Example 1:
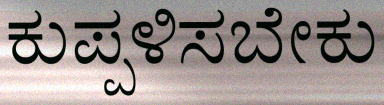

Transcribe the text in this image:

ಕುಪ್ಪಳಿಸಬೇಕು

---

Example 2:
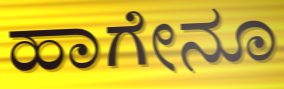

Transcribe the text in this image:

ಹಾಗೇನೂ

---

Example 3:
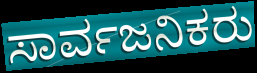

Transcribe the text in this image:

ಸಾರ್ವಜನಿಕರು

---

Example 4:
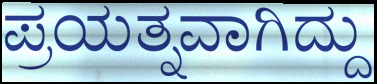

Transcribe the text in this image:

ಪ್ರಯತ್ನವಾಗಿದ್ದು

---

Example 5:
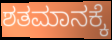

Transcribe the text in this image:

ಶತಮಾನಕ್ಕೆ